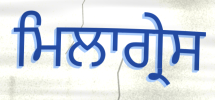
ਮਿਲਾਗ੍ਰੇਸ